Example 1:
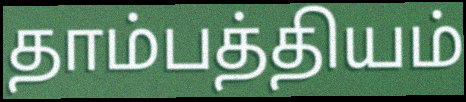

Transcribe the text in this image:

தாம்பத்தியம்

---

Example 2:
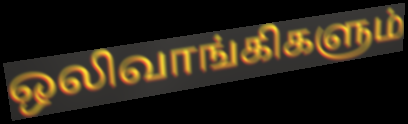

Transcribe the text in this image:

ஒலிவாங்கிகளும்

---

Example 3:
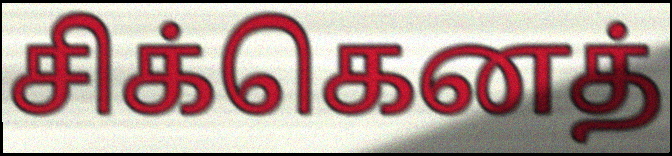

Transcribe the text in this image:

சிக்கெனத்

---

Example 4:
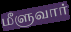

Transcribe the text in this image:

மீளுவார்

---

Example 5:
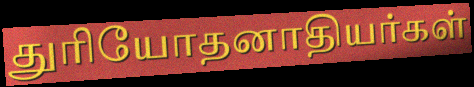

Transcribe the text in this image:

துரியோதனாதியர்கள்